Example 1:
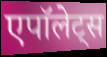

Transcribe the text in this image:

एपॉलेट्स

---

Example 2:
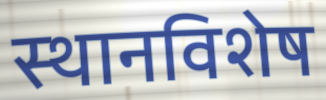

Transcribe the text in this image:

स्थानविशेष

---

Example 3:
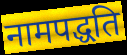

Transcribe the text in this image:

नामपद्धति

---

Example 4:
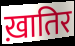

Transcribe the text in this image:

ख़ातिर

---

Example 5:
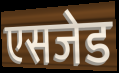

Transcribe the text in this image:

एसजेड